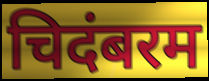
चिदंबरम